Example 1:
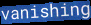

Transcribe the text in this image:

vanishing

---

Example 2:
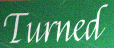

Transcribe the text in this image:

Turned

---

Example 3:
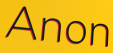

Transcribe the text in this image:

Anon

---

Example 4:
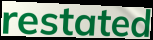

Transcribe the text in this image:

restated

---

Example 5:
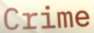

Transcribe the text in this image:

Crime